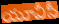
యూవీసీ